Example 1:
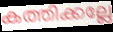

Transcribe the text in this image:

കത്തിക്കല്ലേ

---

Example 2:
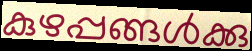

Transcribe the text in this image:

കുഴപ്പങ്ങൾക്കു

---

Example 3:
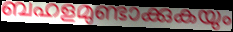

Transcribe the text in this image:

ബഹളമുണ്ടാക്കുകയും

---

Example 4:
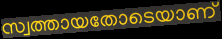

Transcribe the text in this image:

സ്വത്തായതോടെയാണ്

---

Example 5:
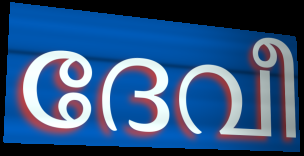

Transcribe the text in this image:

ദേവീ